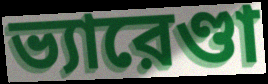
ভ্যারেণ্ডা